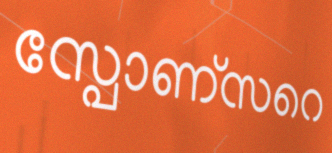
സ്പോണ്സറെ